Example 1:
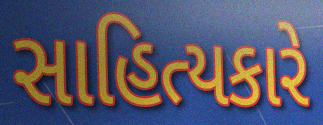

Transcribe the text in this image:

સાહિત્યકારે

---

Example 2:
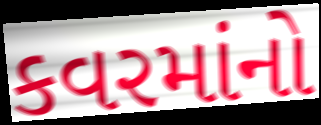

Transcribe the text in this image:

કવરમાંનો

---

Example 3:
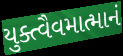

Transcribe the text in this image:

યુક્ત્વૈવમાત્માનં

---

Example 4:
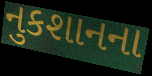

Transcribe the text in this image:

નુકશાનના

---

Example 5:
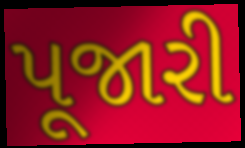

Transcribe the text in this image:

પૂજારી